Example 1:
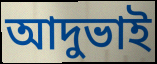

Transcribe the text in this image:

আদুভাই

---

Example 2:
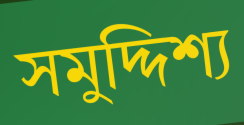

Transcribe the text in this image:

সমুদ্দিশ্য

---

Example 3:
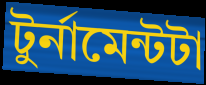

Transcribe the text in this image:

টুর্নামেন্টটা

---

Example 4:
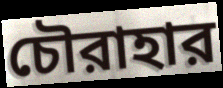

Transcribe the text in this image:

চৌরাহার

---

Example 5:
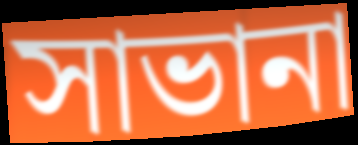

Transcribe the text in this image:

সাভানা